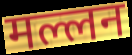
मल्लन